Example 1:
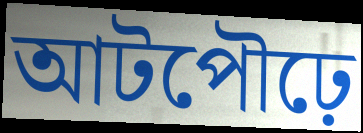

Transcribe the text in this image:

আটপৌঢ়ে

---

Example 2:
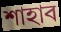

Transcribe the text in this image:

শাহাব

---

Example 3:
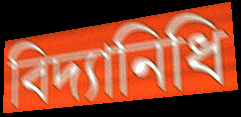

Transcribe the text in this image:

বিদ্যানিধি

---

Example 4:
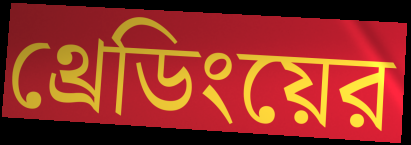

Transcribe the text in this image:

থ্রেডিংয়ের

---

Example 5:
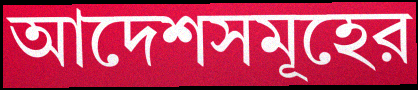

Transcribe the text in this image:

আদেশসমূহের